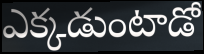
ఎక్కడుంటాడో